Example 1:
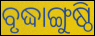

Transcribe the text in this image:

ବୃଦ୍ଧାଙ୍ଗୁଷ୍ଠି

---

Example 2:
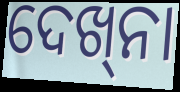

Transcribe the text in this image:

ଦେଖ୍‌ନା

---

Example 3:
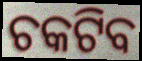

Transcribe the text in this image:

ଚକଟିବ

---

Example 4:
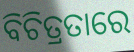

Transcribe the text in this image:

ବିଚିତ୍ରତାରେ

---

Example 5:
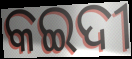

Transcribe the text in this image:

କଇଦୀ